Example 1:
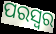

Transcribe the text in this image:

ପରସ୍ୱର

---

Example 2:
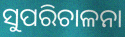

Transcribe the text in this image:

ସୁପରିଚାଳନା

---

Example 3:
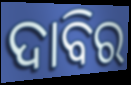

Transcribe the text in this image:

ଦାବିର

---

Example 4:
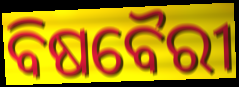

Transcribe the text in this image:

ବିଷବୈରୀ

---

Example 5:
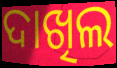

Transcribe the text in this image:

ଦାଖିଲ